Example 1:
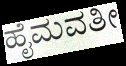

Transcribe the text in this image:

ಹೈಮವತೀ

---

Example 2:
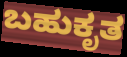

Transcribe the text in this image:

ಬಹುಕೃತ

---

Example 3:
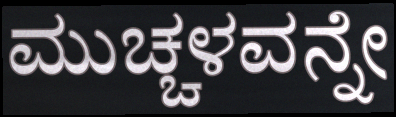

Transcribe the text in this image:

ಮುಚ್ಚಳವನ್ನೇ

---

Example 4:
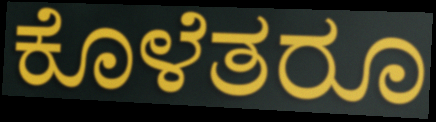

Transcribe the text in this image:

ಕೊಳೆತರೂ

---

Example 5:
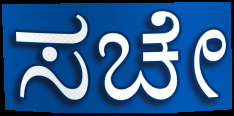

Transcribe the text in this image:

ಸಚೇ